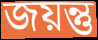
জয়ন্তু